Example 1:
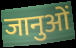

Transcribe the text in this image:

जानुओं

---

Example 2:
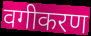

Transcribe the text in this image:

वगीकरण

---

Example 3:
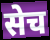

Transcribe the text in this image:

सेच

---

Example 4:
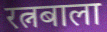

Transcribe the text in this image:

रत्नबाला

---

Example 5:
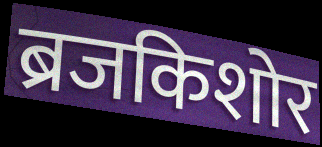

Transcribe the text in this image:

ब्रजकिशोर